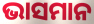
ଭାସମାନ